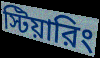
স্টিয়ারিং